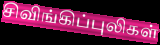
சிவிங்கிப்புலிகள்